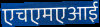
एचएमएआई